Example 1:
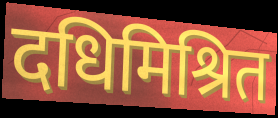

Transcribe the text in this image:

दधिमिश्रित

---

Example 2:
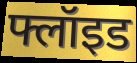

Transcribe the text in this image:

फ्लॉइड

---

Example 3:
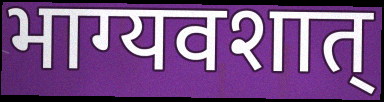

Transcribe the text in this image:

भाग्यवशात्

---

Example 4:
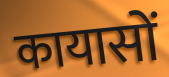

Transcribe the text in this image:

कायासों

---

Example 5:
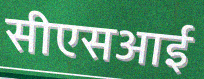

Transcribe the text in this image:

सीएसआई